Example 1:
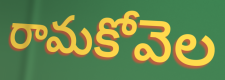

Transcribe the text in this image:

రామకోవెల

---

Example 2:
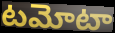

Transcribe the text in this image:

టమోటా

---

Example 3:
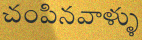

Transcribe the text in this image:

చంపినవాళ్ళు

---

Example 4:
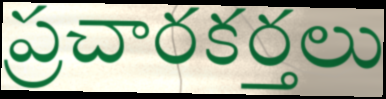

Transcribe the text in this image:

ప్రచారకర్తలు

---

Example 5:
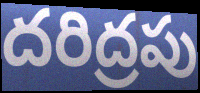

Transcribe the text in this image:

దరిద్రపు